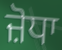
ਜ਼ੋਧਾ